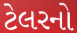
ટેલરનો